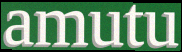
amutu